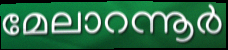
മേലാറന്നൂർ